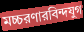
মচ্চরণারবিন্দযুগ